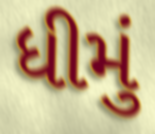
ધીમું